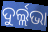
ଦୁର୍ଲ୍ଲଭା